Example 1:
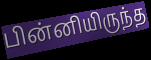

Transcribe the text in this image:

பின்னியிருந்த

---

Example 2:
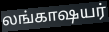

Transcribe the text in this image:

லங்காஷயர்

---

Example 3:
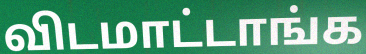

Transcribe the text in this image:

விடமாட்டாங்க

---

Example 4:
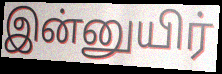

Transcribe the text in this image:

இன்னுயிர்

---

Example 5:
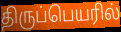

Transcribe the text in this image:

திருப்பெயரில்